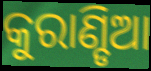
କୁରାଣ୍ଡିଆ